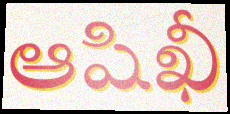
ఆషిఖీ